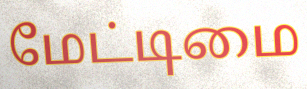
மேட்டிமை